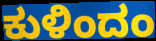
ಕುಳಿಂದಂ